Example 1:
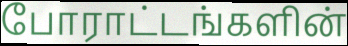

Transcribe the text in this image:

போராட்டங்களின்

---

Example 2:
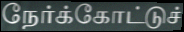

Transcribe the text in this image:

நேர்க்கோட்டுச்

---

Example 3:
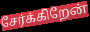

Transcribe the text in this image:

சேர்க்கிறேன்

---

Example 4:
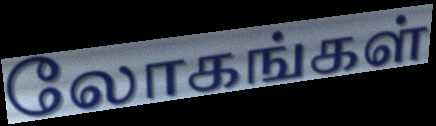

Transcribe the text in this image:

லோகங்கள்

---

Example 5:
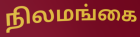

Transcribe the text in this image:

நிலமங்கை